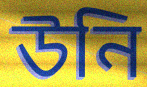
উনি